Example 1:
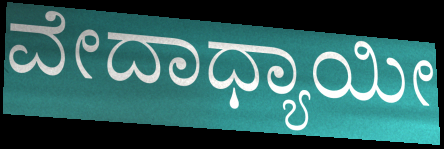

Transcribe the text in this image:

ವೇದಾಧ್ಯಾಯೀ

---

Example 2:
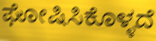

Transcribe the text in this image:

ಘೋಷಿಸಿಕೊಳ್ಳದೆ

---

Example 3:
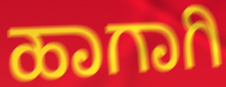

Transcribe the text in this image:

ಹಾಗಾಗಿ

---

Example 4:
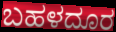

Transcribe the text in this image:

ಬಹಳದೂರ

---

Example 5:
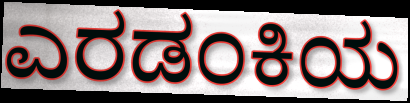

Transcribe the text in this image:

ಎರಡಂಕಿಯ